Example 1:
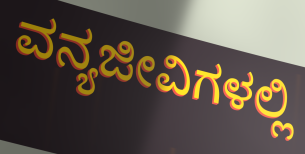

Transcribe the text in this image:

ವನ್ಯಜೀವಿಗಳಲ್ಲಿ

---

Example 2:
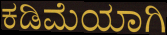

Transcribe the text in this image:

ಕಡಿಮೆಯಾಗಿ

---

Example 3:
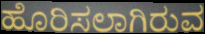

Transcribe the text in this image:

ಹೊರಿಸಲಾಗಿರುವ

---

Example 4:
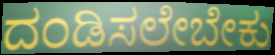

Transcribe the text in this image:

ದಂಡಿಸಲೇಬೇಕು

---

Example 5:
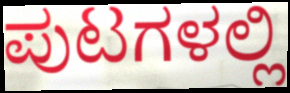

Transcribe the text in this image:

ಪುಟಗಳಲ್ಲಿ